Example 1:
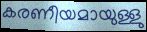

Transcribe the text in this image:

കരണീയമായുള്ളു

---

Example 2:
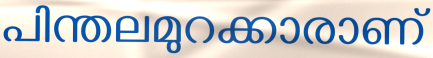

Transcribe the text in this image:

പിന്തലമുറക്കാരാണ്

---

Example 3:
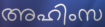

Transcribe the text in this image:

അഹിംസ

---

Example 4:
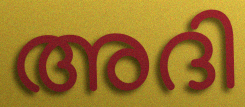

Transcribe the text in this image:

അദി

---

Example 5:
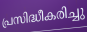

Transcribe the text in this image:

പ്രസിദ്ധീകരിച്ചു